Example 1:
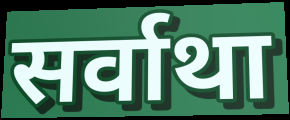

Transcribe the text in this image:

सर्वाथा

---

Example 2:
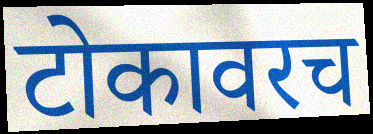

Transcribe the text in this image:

टोकावरच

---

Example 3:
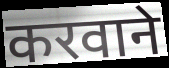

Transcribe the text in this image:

करवाने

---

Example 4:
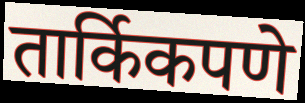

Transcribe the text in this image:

तार्किकपणे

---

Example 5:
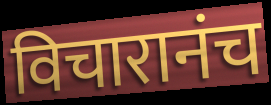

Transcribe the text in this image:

विचारानंच